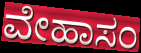
ವೇಹಾಸಂ